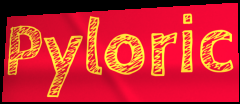
Pyloric